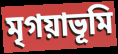
মৃগয়াভূমি